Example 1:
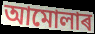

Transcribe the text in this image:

আমোলাৰ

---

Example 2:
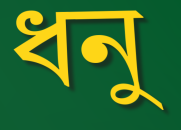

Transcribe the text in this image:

ধনু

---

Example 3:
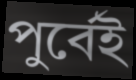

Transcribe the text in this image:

পুৰ্বেই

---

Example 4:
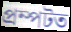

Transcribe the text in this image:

প্ৰম্পটত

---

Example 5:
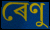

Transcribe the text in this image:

ৰেণু